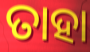
ତାହା